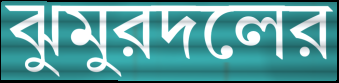
ঝুমুরদলের